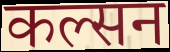
कल्सन